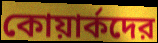
কোয়ার্কদের